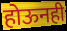
होऊनही